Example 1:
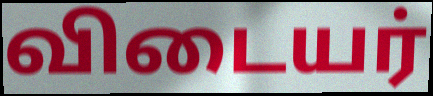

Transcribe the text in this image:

விடையர்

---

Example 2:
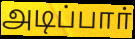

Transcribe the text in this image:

அடிப்பார்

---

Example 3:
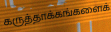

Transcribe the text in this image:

கருத்தாக்கங்களைக்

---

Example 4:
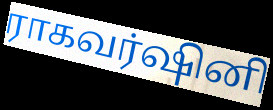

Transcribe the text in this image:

ராகவர்ஷினி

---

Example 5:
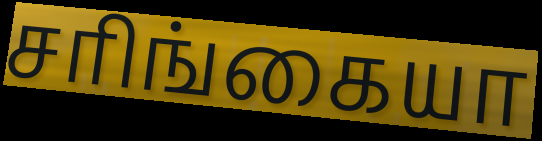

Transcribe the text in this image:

சரிங்கையா